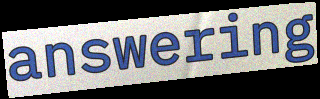
answering